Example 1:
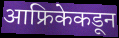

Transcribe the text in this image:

आफ्रिकेकडून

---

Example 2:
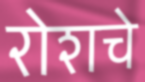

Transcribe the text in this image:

रोशचे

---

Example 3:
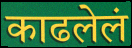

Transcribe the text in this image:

काढलेलं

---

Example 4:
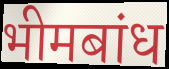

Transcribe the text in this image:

भीमबांध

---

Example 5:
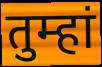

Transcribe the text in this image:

तुम्हां